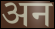
अन